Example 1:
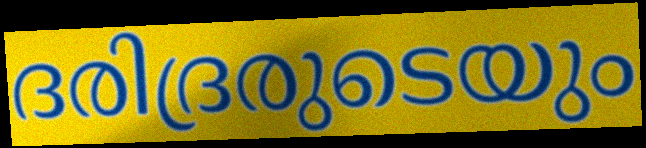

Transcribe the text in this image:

ദരിദ്രരുടെയും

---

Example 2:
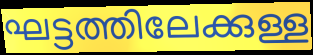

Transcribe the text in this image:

ഘട്ടത്തിലേക്കുള്ള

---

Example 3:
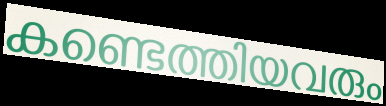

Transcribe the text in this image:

കണ്ടെത്തിയവരും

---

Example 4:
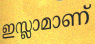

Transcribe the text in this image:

ഇസ്ലാമാണ്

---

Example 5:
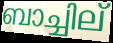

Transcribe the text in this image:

ബാച്ചില്